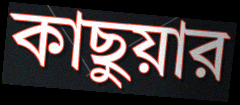
কাছুয়ার